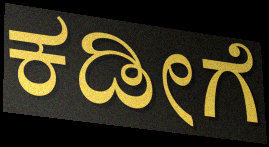
ಕಡೀಗೆ